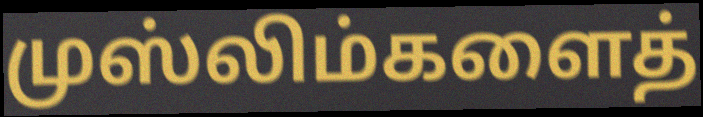
முஸ்லிம்களைத்